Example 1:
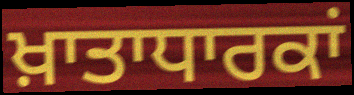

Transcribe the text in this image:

ਖ਼ਾਤਾਧਾਰਕਾਂ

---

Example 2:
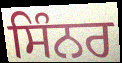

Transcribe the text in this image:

ਸਿੰਨਰ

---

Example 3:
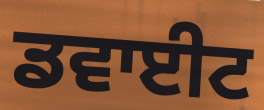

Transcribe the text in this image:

ਡਵਾਈਟ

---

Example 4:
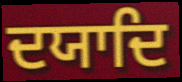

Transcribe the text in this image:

ਦਯਾਦਿ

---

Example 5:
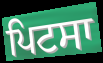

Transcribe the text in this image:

ਪਿਟਸਾ